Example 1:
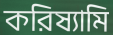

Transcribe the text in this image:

করিষ্যামি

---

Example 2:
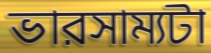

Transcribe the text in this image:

ভারসাম্যটা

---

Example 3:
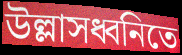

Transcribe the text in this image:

উল্লাসধ্বনিতে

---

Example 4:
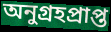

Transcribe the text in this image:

অনুগ্রহপ্রাপ্ত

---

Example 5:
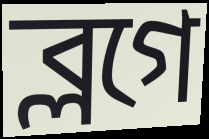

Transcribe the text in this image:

ব্লগে